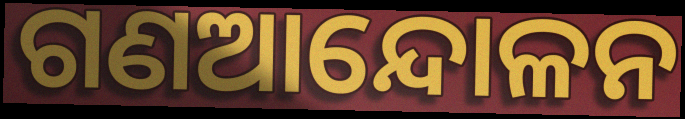
ଗଣଆନ୍ଦୋଳନ